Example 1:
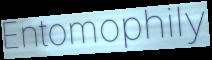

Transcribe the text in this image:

Entomophily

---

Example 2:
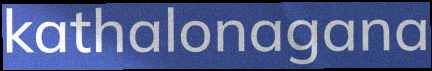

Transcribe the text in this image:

kathalonagana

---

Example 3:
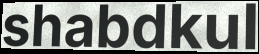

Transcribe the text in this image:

shabdkul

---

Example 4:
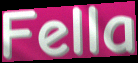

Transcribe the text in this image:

Fella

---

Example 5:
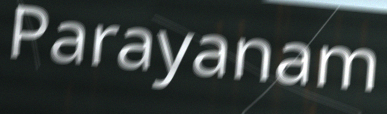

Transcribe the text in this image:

Parayanam